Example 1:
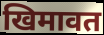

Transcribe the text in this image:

खिमावत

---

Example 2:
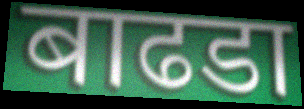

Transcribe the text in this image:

बाढडा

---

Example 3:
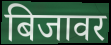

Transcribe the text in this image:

बिजावर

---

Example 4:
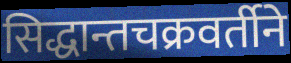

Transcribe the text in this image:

सिद्धान्तचक्रवर्तीने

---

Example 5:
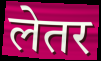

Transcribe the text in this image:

लेतर